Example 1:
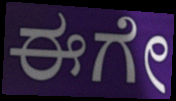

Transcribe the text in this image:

ಈಗೇ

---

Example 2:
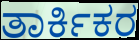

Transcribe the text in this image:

ತಾರ್ಕಿಕರ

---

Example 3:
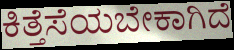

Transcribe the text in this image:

ಕಿತ್ತೆಸೆಯಬೇಕಾಗಿದೆ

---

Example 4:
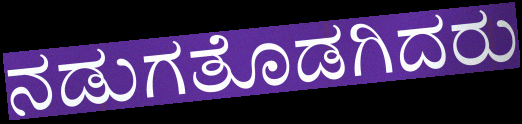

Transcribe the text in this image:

ನಡುಗತೊಡಗಿದರು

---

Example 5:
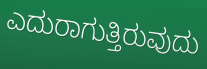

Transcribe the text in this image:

ಎದುರಾಗುತ್ತಿರುವುದು